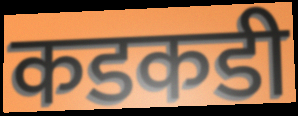
कडकडी